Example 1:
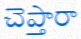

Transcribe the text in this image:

చెప్తారా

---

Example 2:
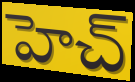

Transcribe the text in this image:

హెచ్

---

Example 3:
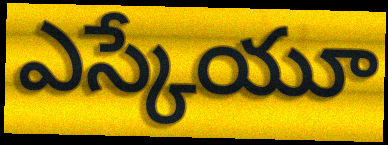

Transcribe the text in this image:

ఎస్కేయూ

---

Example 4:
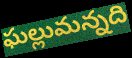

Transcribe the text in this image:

ఘల్లుమన్నది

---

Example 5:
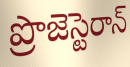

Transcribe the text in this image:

ప్రొజెస్టెరాన్